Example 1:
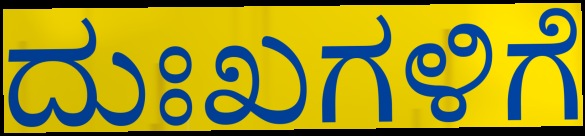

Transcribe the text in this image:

ದುಃಖಗಳಿಗೆ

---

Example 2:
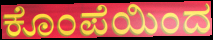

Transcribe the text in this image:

ಕೊಂಪೆಯಿಂದ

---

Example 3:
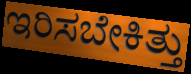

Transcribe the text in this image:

ಇರಿಸಬೇಕಿತ್ತು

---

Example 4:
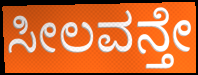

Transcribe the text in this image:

ಸೀಲವನ್ತೇ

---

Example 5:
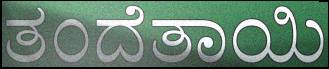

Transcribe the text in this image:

ತಂದೆತಾಯಿ